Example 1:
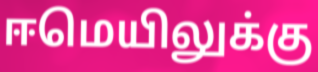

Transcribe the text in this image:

ஈமெயிலுக்கு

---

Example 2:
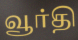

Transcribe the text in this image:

வூர்தி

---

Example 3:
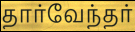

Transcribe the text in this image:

தார்வேந்தர்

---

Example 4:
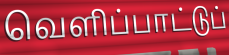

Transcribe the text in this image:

வெளிப்பாட்டுப்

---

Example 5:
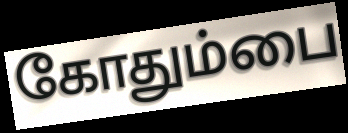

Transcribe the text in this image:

கோதும்பை